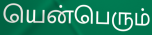
யென்பெரும்